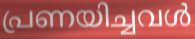
പ്രണയിച്ചവൾ